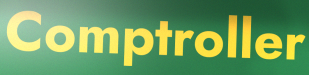
Comptroller